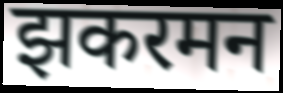
झकरमन